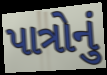
પાત્રોનું